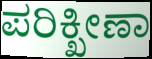
ಪರಿಕ್ಖೀಣಾ